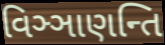
વિઞ્ઞાણન્તિ